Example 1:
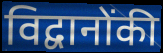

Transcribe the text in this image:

विद्वानोंकी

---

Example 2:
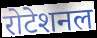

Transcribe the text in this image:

रोटेशनल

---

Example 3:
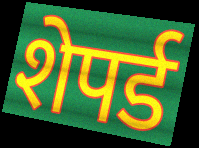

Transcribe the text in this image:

शेपर्ड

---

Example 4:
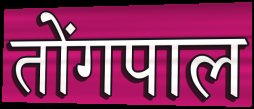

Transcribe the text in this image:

तोंगपाल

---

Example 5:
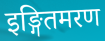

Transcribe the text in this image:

इङ्गितमरण